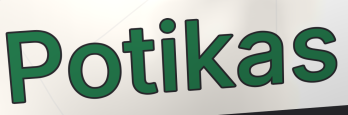
Potikas